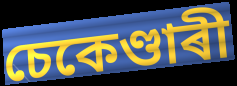
চেকেণ্ডাৰী